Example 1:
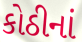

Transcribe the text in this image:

કોઠીનાં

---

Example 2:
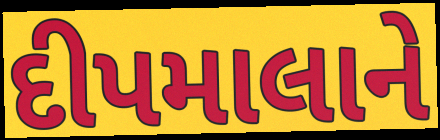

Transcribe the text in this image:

દીપમાલાને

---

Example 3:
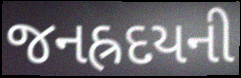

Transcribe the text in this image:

જનહ્રદયની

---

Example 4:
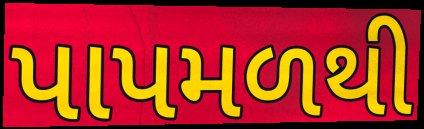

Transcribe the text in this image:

પાપમળથી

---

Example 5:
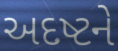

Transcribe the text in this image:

અદષ્ટને